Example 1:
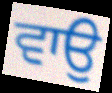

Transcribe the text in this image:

ਵਾਉ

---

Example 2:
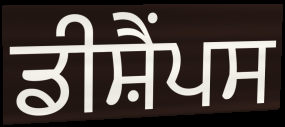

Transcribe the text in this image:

ਡੀਸ਼ੈਂਪਸ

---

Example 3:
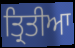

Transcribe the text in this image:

ਤ੍ਰਿਤੀਆ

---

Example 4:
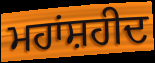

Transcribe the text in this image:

ਮਹਾਂਸ਼ਹੀਦ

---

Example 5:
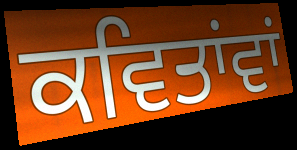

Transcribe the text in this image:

ਕਵਿਤਾਂਵਾਂ